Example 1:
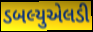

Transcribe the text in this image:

ડબલ્યુએલડી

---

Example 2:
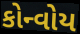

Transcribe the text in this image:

કોન્વોય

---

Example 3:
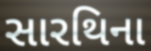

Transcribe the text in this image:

સારથિના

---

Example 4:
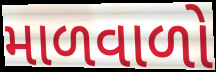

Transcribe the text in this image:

માળવાળો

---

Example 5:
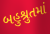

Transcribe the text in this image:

બહુશ્રુતમાં